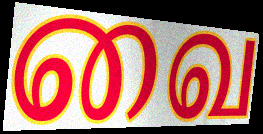
வை